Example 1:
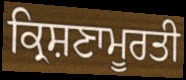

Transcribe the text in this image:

ਕ੍ਰਿਸ਼ਣਾਮੂਰਤੀ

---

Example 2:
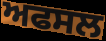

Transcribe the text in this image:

ਅਫਸਲ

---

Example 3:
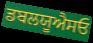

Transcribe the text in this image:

ਡਬਲਯੂਐਸਓ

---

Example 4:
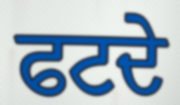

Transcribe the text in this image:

ਫਟਦੇ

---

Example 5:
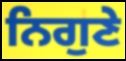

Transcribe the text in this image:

ਨਿਗੁਣੇ